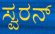
ಸ್ವರನ್